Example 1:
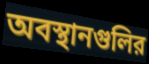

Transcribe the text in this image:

অবস্থানগুলির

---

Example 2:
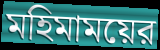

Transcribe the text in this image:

মহিমাময়ের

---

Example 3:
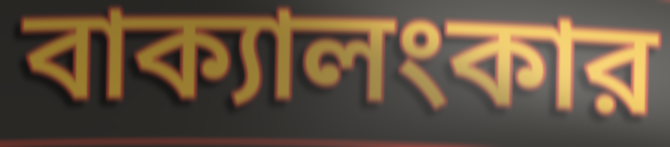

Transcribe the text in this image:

বাক্যালংকার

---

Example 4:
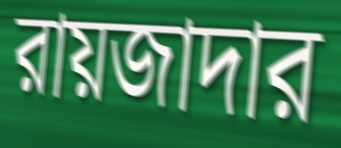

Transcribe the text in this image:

রায়জাদার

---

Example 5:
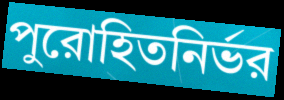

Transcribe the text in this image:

পুরোহিতনির্ভর